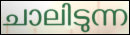
ചാലിടുന്ന